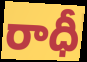
రాధీ